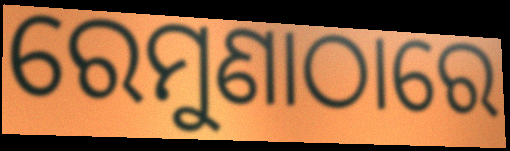
ରେମୁଣାଠାରେ